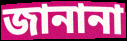
জানানা